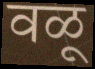
वळू